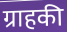
ग्राहकी